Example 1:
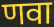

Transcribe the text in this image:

णवा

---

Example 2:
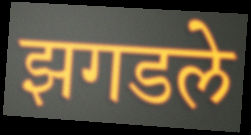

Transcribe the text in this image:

झगडले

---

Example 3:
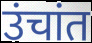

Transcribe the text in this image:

उंचांत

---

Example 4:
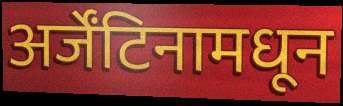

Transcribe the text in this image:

अर्जेंटिनामधून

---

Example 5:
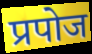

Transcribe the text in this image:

प्रपोज